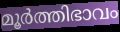
മൂർത്തിഭാവം